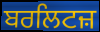
ਬਰਲਿਟਜ਼